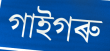
গাইগৰু